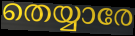
തെയ്യാരേ